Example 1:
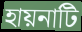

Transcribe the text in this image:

হায়নাটি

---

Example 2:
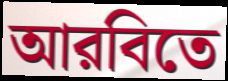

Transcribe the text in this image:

আরবিতে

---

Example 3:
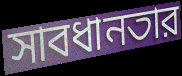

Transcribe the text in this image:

সাবধানতার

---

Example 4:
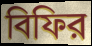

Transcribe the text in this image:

বিফির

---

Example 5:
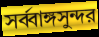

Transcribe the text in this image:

সর্ব্বাঙ্গসুন্দর